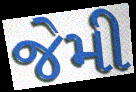
જેમી